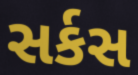
સર્કસ